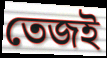
তেজই